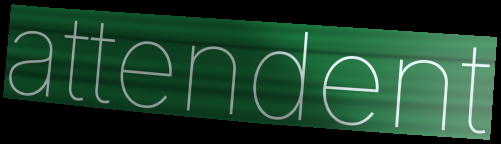
attendent